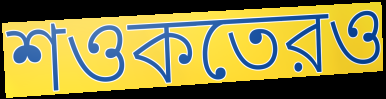
শওকতেরও